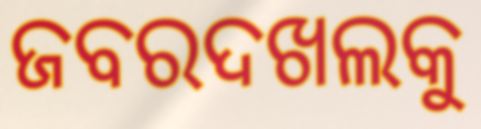
ଜବରଦଖଲକୁ